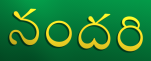
నందరి